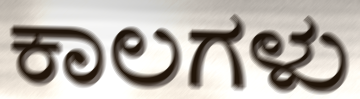
ಕಾಲಗಳು